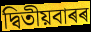
দ্বিতীয়বাৰৰ